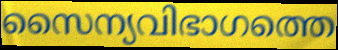
സൈന്യവിഭാഗത്തെ